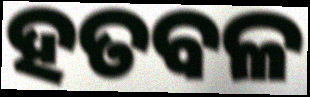
ହତବଳ